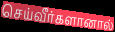
செய்வீர்களானால்